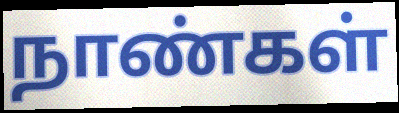
நாண்கள்